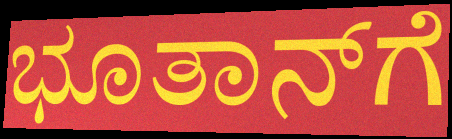
ಭೂತಾನ್‌ಗೆ